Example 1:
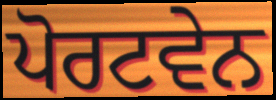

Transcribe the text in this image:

ਪੋਰਟਵੇਨ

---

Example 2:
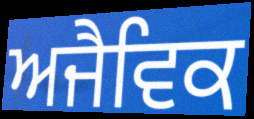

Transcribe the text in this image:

ਅਜੈਵਿਕ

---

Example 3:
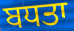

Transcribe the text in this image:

ਬਧਤਾ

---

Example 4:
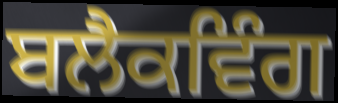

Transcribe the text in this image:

ਬਲੈਕਵਿੰਗ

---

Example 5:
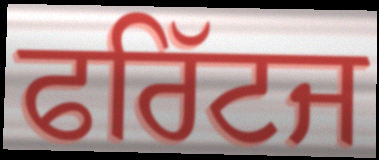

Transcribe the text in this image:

ਫਰਿੱਟਜ